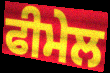
ਫੀਮੇਲ